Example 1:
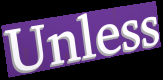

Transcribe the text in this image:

Unless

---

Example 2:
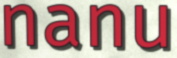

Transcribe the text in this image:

nanu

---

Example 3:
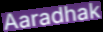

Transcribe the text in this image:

Aaradhak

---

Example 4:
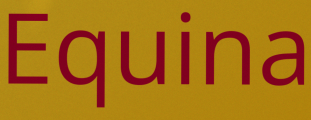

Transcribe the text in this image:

Equina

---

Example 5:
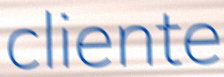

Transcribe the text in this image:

cliente